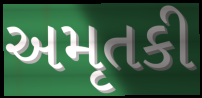
અમૃતકી